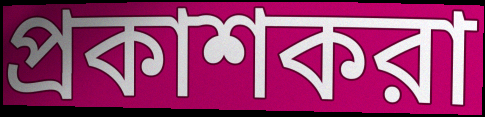
প্রকাশকরা